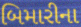
બિમારીના